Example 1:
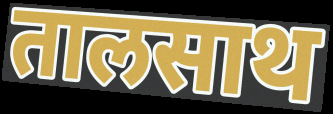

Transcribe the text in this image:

तालसाथ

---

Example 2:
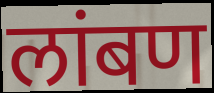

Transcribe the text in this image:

लांबण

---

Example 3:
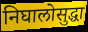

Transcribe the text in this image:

निघालोसुद्धा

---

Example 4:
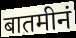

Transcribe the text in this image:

बातमीनं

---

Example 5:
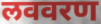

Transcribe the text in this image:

लववरण